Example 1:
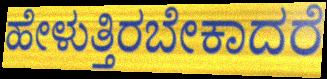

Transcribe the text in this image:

ಹೇಳುತ್ತಿರಬೇಕಾದರೆ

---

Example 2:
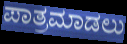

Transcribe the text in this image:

ಪಾತ್ರಮಾಡಲು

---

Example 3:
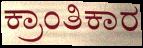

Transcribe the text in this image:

ಕ್ರಾಂತಿಕಾರ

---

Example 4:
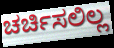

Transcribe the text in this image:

ಚರ್ಚಿಸಲಿಲ್ಲ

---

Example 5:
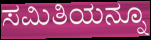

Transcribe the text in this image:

ಸಮಿತಿಯನ್ನೂ